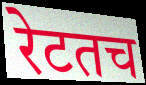
रेटतच